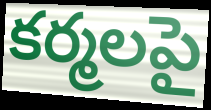
కర్మలపై